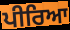
ਪੀਰਿਆ